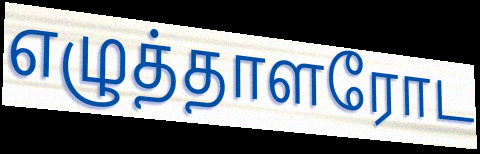
எழுத்தாளரோட